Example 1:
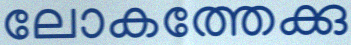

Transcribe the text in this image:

ലോകത്തേക്കു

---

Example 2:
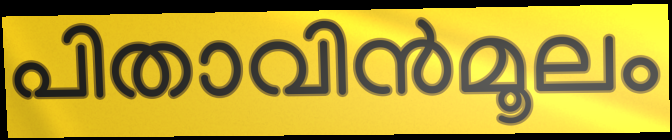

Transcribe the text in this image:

പിതാവിൻമൂലം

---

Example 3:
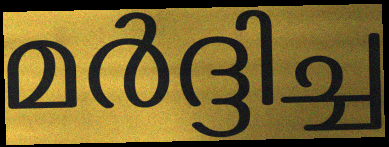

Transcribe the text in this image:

മർദ്ദിച്ച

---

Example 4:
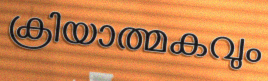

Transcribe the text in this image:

ക്രിയാത്മകവും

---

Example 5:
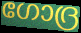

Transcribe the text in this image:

ഗോദ്ര